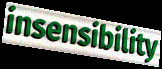
insensibility